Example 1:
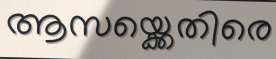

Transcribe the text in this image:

ആസയ്ക്കെതിരെ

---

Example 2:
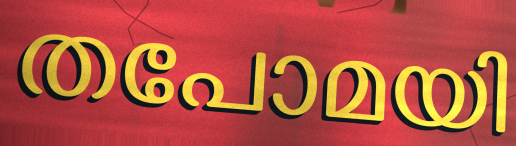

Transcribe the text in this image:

തപോമയി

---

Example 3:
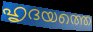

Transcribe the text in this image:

ഹൃദയത്തെ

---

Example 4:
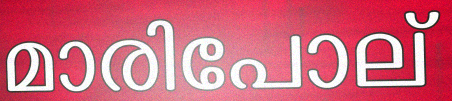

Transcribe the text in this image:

മാരിപോല്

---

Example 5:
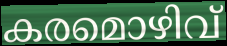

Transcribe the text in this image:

കരമൊഴിവ്